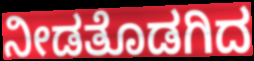
ನೀಡತೊಡಗಿದ